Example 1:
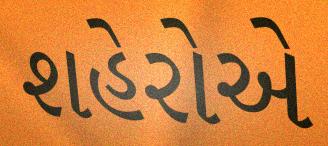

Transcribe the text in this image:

શહેરોએ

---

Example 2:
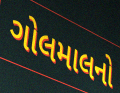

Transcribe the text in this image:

ગોલમાલનો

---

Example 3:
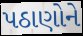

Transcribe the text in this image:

પઠાણોને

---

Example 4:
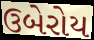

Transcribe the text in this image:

ઉબેરોય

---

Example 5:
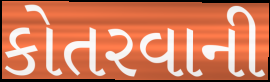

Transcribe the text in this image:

કોતરવાની